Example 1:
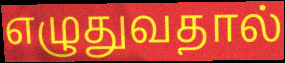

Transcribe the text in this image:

எழுதுவதால்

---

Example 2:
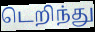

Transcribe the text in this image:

டெறிந்து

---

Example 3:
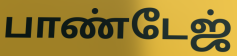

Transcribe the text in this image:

பாண்டேஜ்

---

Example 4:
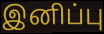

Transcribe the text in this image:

இனிப்பு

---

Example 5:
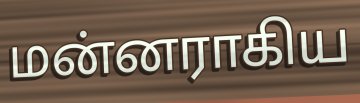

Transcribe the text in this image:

மன்னராகிய